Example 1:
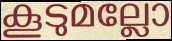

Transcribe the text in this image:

കൂടുമല്ലോ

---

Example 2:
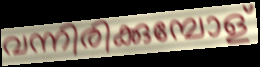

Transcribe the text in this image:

വന്നിരിക്കുമ്പോള്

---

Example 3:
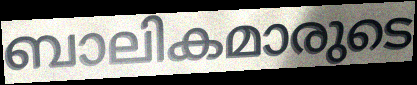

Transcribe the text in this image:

ബാലികമാരുടെ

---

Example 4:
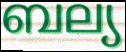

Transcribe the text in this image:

ബല്യ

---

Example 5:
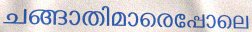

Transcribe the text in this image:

ചങ്ങാതിമാരെപ്പോലെ